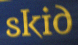
skid